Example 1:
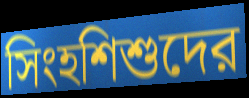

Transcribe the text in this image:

সিংহশিশুদের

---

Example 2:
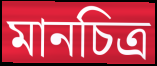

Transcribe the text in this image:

মানচিত্র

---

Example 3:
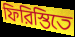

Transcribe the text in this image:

ফিরিস্তিতে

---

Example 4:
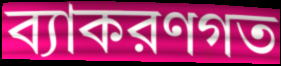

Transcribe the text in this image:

ব্যাকরণগত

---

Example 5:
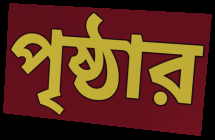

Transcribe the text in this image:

পৃষ্ঠার